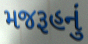
મજરૂહનું